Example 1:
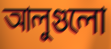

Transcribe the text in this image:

আলুগুলো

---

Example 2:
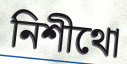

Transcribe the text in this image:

নিশীথো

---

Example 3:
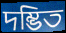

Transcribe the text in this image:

দম্ভিত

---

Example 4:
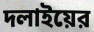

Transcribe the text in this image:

দলাইয়ের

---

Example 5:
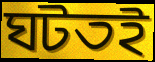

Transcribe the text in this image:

ঘটতই